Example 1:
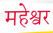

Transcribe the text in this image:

महेश्वर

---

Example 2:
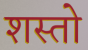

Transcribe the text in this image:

शस्तो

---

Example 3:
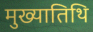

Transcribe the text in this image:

मुख्यातिथि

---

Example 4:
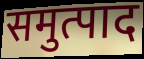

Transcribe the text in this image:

समुत्पाद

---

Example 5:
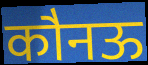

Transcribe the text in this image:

कौनऊ